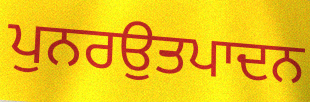
ਪੁਨਰਉਤਪਾਦਨ